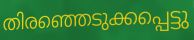
തിരഞ്ഞെടുക്കപ്പെട്ടു